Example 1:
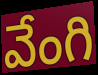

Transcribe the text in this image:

వేంగి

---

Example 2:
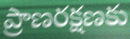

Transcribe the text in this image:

ప్రాణరక్షణకు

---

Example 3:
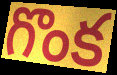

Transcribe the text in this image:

గొంక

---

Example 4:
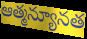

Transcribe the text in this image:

ఆత్మన్యూనత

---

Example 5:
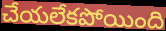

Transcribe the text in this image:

చేయలేకపోయింది